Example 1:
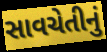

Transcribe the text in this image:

સાવચેતીનું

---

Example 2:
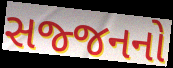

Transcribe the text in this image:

સજ્જનનો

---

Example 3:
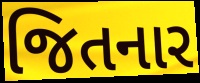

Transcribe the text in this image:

જિતનાર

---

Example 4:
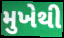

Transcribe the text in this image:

મુખેથી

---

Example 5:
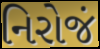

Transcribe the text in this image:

નિરોજં